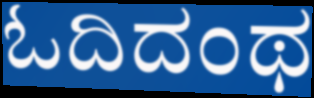
ಓದಿದಂಥ